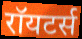
रॉयटर्स